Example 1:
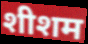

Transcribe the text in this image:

शीशम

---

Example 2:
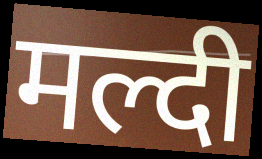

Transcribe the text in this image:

मल्दी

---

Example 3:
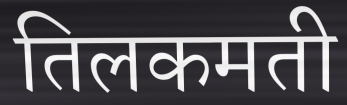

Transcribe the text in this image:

तिलकमती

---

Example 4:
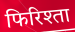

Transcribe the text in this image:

फिरिश्ता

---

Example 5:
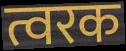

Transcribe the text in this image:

त्वरक